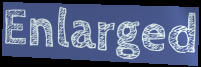
Enlarged